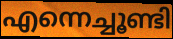
എന്നെച്ചൂണ്ടി